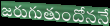
జరుగుతుందోననే